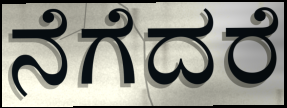
ನೆಗೆದರೆ